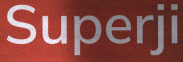
Superji